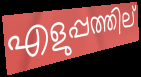
എളുപ്പത്തില്